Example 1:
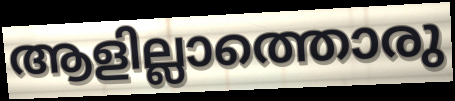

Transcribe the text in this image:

ആളില്ലാത്തൊരു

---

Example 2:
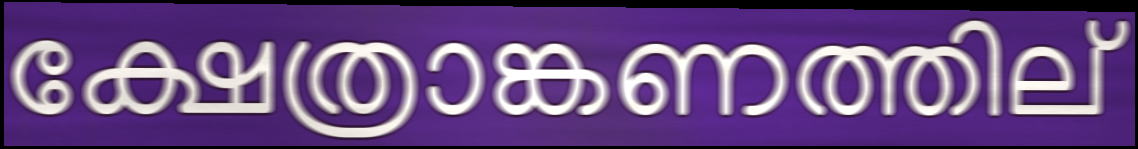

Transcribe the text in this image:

ക്ഷേത്രാങ്കണത്തില്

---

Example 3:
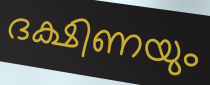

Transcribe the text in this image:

ദക്ഷിണയും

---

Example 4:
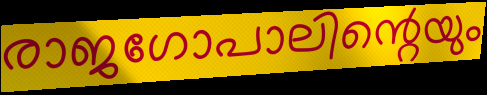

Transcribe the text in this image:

രാജഗോപാലിന്റെയും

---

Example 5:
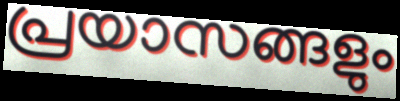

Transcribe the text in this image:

പ്രയാസങ്ങളും